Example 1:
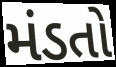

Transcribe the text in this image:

મંડતો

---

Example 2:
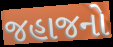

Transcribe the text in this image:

જહાજનો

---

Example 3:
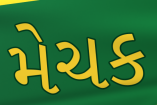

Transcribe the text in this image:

મેચક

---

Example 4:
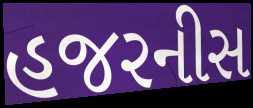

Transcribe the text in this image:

હજરનીસ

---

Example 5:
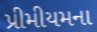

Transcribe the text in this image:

પ્રીમીયમના